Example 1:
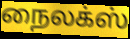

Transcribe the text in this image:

நைலக்ஸ்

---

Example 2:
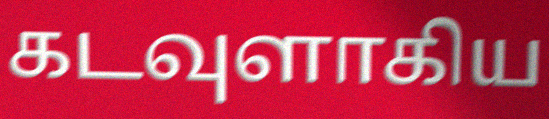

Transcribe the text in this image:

கடவுளாகிய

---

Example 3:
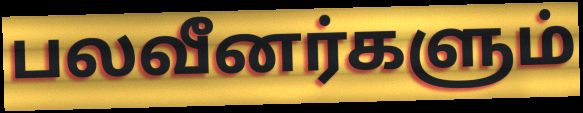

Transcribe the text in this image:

பலவீனர்களும்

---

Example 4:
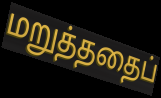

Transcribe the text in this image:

மறுத்ததைப்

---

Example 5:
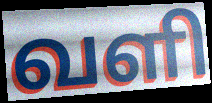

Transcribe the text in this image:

வளி